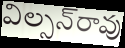
విల్సన్‌రావు